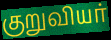
குறுவியர்